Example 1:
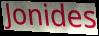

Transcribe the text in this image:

Jonides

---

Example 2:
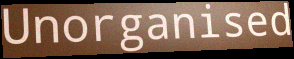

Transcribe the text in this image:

Unorganised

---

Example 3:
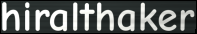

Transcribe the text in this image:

hiralthaker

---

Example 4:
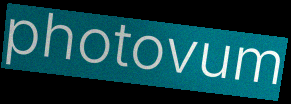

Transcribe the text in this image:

photovum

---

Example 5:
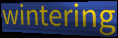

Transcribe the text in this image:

wintering